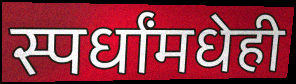
स्पर्धांमधेही